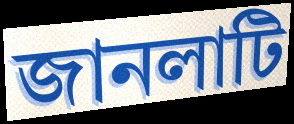
জানলাটি